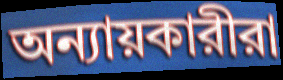
অন্যায়কারীরা